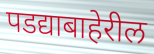
पडद्याबाहेरील